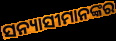
ସନ୍ୟାସୀମାନଙ୍କର